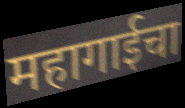
महागाईचा